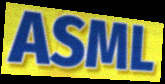
ASML